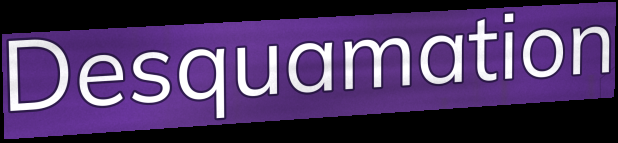
Desquamation